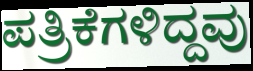
ಪತ್ರಿಕೆಗಳಿದ್ದವು